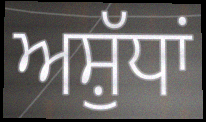
ਅਸ਼ੁੱਧਾਂ